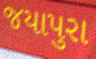
જયાપુરા